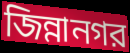
জিন্নানগর